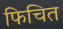
फिचित